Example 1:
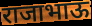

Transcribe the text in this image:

राजाभाऊ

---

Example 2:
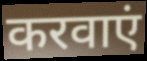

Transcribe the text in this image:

करवाएं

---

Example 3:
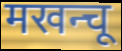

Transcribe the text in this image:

मखन्चू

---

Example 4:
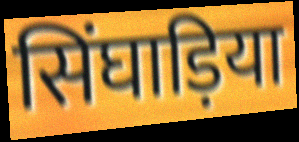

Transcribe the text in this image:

सिंघाड़िया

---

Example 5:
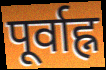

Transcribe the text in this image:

पूर्वाह्न